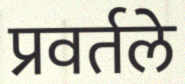
प्रवर्तले